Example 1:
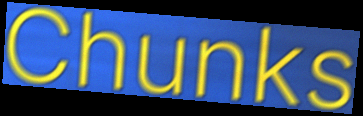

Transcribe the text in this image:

Chunks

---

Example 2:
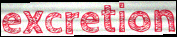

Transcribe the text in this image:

excretion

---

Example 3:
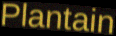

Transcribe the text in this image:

Plantain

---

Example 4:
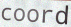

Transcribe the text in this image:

coord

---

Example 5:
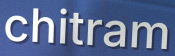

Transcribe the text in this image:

chitram